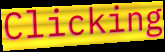
Clicking